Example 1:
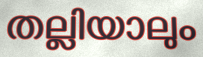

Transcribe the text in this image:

തല്ലിയാലും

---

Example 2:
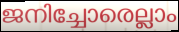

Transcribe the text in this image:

ജനിച്ചോരെല്ലാം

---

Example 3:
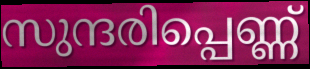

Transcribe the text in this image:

സുന്ദരിപ്പെണ്ണ്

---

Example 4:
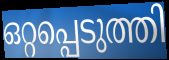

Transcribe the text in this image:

ഒറ്റപ്പെടുത്തി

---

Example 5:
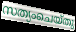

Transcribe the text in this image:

സത്യംചെയ്തു